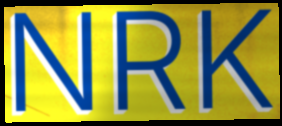
NRK